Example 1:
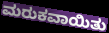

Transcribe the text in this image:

ಮರುಕವಾಯಿತು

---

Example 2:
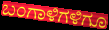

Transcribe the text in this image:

ಬಂಗಾಳಿಗಳಿಗೂ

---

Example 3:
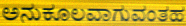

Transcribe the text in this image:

ಅನುಕೂಲವಾಗುವಂತಹ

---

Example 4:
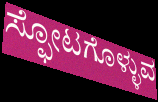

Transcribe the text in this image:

ಸ್ಫೋಟಗೊಳ್ಳುವ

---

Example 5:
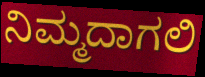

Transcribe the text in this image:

ನಿಮ್ಮದಾಗಲಿ